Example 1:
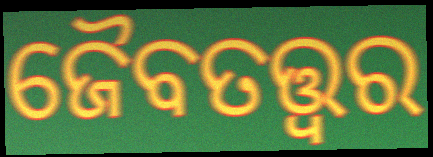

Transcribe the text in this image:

ଜୈବତତ୍ତ୍ୱର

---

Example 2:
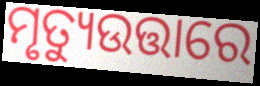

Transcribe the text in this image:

ମୃତ୍ୟୁଉତ୍ତାରେ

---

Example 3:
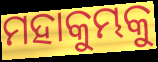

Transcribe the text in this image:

ମହାକୁମ୍ଭକୁ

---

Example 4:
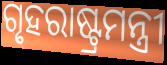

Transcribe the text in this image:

ଗୃହରାଷ୍ଟ୍ରମନ୍ତ୍ରୀ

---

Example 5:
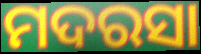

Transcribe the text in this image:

ମଦରସା